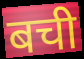
बची